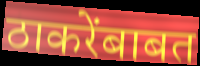
ठाकरेंबाबत